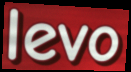
levo